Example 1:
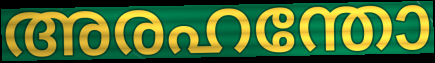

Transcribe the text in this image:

അരഹന്തോ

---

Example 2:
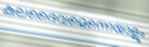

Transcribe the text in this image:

കുലദൈവമെന്നെയാളും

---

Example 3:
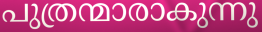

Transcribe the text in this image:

പുത്രന്മാരാകുന്നു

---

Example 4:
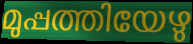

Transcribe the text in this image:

മുപ്പത്തിയേഴു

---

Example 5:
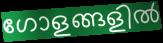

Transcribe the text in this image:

ഗോളങ്ങളിൽ